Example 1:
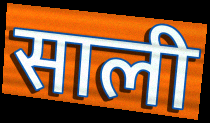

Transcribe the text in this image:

साली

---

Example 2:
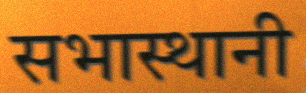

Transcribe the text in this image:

सभास्थानी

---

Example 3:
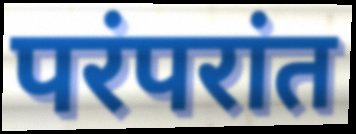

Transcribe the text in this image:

परंपरांत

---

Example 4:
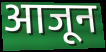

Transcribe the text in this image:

आजून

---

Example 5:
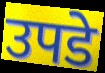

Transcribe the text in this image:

उपडे